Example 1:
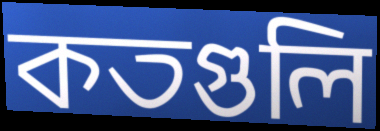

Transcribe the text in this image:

কতগুলি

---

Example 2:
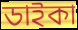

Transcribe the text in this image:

ডাইকা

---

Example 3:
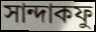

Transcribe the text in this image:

সান্দাকফু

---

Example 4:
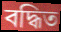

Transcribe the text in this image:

বদ্ধিত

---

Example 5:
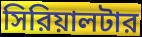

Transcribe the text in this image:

সিরিয়ালটার